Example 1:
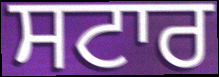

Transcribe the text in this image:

ਸਟਾਰ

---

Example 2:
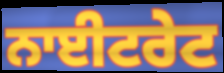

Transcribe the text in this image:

ਨਾਈਟਰੇਟ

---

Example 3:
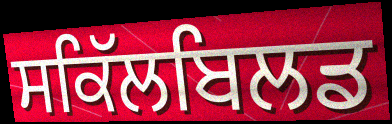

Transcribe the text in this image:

ਸਕਿੱਲਬਿਲਡ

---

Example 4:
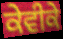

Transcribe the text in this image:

ਕੇਵੀਕੇ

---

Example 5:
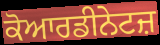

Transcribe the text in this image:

ਕੋਆਰਡੀਨੇਟਜ਼